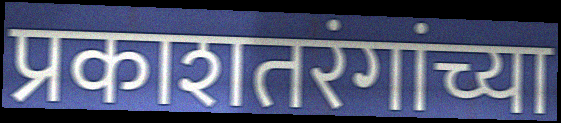
प्रकाशतरंगांच्या